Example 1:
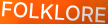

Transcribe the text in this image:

FOLKLORE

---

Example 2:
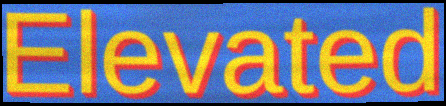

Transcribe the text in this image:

Elevated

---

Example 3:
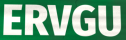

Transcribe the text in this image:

ERVGU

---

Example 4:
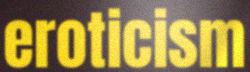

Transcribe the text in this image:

eroticism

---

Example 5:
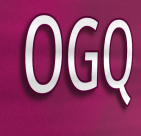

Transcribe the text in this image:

OGQ